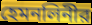
হেমনলিনীর